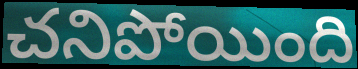
చనిపోయింది